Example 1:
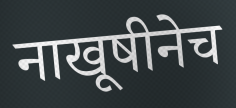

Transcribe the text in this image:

नाखूषीनेच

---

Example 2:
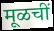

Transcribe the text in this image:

मूळचीं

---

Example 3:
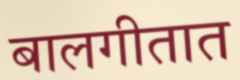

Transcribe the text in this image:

बालगीतात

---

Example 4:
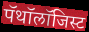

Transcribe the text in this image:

पॅथॉलॉजिस्ट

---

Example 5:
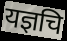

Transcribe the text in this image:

यज्ञचि